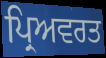
ਪ੍ਰਿਅਵਰਤ